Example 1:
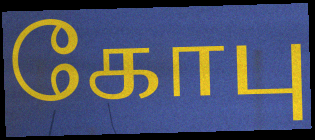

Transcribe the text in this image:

கோபு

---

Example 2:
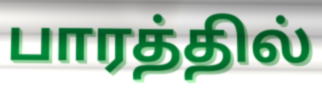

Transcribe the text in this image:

பாரத்தில்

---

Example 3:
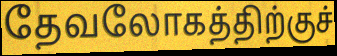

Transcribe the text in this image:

தேவலோகத்திற்குச்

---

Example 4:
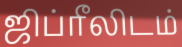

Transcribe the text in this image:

ஜிப்ரீலிடம்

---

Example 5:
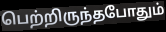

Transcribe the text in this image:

பெற்றிருந்தபோதும்